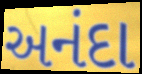
અનંદા